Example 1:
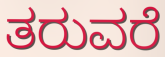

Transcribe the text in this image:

ತರುವರೆ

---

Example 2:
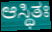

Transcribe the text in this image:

ಆಸ್ಥಿತಃ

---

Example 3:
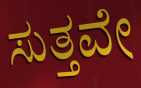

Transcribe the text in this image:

ಸುತ್ತವೇ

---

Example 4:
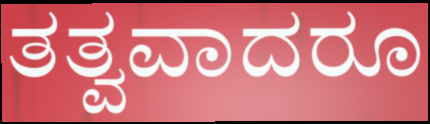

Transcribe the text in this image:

ತತ್ವವಾದರೂ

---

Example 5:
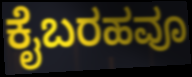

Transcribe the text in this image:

ಕೈಬರಹವೂ